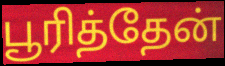
பூரித்தேன்